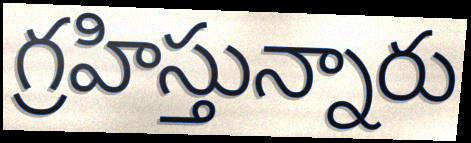
గ్రహిస్తున్నారు